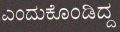
ಎಂದುಕೊಂಡಿದ್ದ